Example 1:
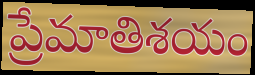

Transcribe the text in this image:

ప్రేమాతిశయం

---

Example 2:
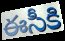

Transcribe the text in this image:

ఈసీకి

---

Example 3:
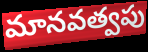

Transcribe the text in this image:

మానవత్వపు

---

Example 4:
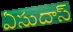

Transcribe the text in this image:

ఏసుదాస్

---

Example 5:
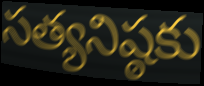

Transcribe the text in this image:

సత్యనిష్ఠకు